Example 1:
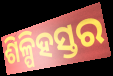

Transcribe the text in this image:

ଶିଳ୍ପିହସ୍ତର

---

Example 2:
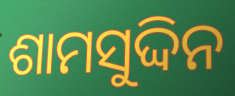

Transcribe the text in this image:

ଶାମସୁଦ୍ଦିନ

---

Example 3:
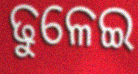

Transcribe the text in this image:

ଢୁଳେଇ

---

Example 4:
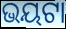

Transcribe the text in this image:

ଭୟଟା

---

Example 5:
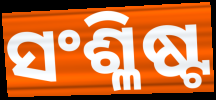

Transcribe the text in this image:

ସଂଶ୍ଳିଷ୍ଟ